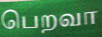
பெறவா